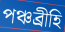
পঞ্চব্রীহি